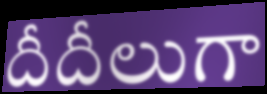
దీదీలుగా